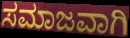
ಸಮಾಜವಾಗಿ